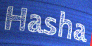
Hasha